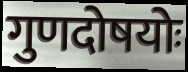
गुणदोषयोः